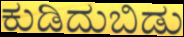
ಕುಡಿದುಬಿಡು